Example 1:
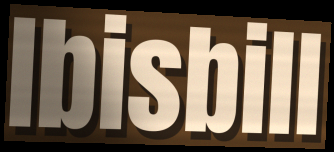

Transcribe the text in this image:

Ibisbill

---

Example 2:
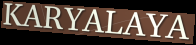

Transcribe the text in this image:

KARYALAYA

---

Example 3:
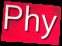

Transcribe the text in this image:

Phy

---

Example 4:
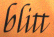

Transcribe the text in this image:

blitt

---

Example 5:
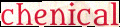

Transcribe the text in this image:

chenical